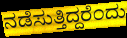
ನಡೆಸುತ್ತಿದ್ದರೆಂದು